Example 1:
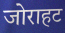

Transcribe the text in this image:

जोराहट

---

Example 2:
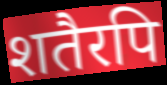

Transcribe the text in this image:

शतैरपि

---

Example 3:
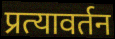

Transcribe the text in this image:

प्रत्‍यावर्तन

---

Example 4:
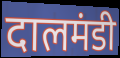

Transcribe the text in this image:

दालमंडी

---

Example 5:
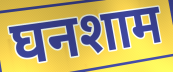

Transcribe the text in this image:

घनशाम